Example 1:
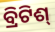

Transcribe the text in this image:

ବ୍ରିଟିଶ୍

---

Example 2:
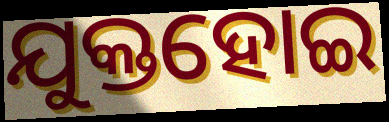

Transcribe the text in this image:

ଯୁକ୍ତହୋଇ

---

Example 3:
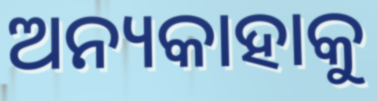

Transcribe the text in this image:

ଅନ୍ୟକାହାକୁ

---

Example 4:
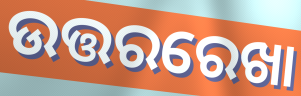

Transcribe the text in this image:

ଉତ୍ତରରେଖା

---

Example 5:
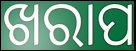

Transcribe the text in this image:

ଖରାପ